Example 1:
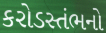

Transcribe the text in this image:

કરોડસ્તંભનો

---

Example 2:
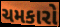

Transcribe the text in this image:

ચમકારો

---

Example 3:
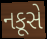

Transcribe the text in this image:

નકૂસે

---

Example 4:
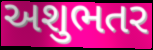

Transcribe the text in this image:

અશુભતર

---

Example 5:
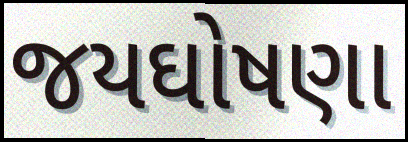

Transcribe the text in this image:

જયઘોષણા